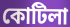
কোটিলা